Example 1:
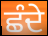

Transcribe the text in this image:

ਛੰਦੇ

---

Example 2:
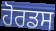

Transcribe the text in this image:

ਹੋਰਡਸ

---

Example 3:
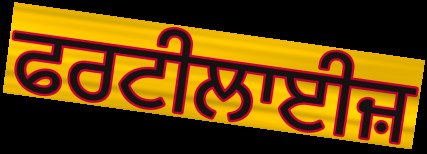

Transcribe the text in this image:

ਫਰਟੀਲਾਈਜ਼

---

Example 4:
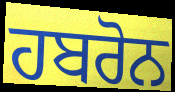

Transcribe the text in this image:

ਹਬਰੋਨ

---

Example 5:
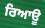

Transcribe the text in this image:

ਰਿਆਊ